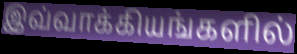
இவ்வாக்கியங்களில்